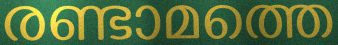
രണ്ടാമത്തെ